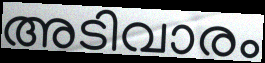
അടിവാരം